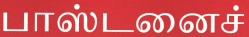
பாஸ்டனைச்